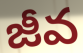
జీవ